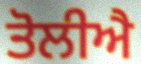
ਤੋਲੀਐ